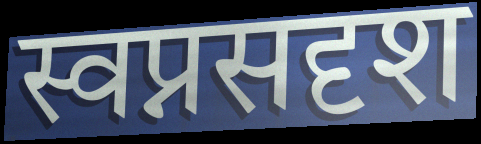
स्वप्नसदृश